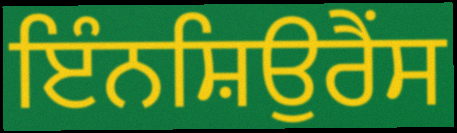
ਇੰਨਸ਼ਿਉਰੈਂਸ